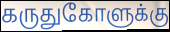
கருதுகோளுக்கு